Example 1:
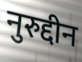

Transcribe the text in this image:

नुरुद्दीन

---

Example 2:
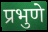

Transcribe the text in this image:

प्रभुणे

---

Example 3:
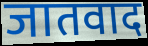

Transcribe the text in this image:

जातवाद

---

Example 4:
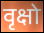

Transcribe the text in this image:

वृक्षो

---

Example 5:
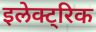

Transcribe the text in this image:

इलेक्ट्रिक